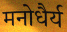
मनोधैर्य